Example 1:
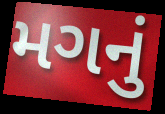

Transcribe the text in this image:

મગનું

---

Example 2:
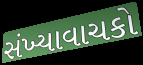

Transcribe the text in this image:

સંખ્યાવાચકો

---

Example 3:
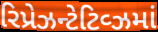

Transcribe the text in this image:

રિપ્રેઝન્ટેટિવ્ઝમાં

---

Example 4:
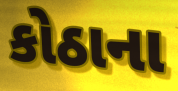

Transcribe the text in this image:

કોઠાના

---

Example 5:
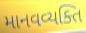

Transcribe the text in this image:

માનવવ્યક્તિ